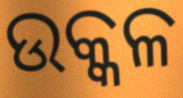
ଉକ୍କଳ